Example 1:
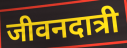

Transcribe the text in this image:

जीवनदात्री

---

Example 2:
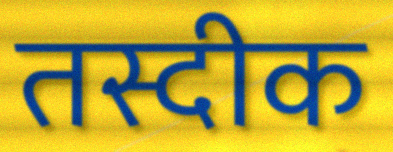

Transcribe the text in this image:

तस्‍दीक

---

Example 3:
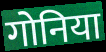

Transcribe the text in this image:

गोनिया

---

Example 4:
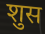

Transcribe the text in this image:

शुस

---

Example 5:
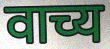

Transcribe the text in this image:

वाच्य